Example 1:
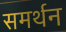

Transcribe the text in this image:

समर्थन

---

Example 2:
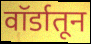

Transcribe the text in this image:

वॉर्डातून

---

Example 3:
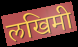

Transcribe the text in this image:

लखिमी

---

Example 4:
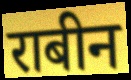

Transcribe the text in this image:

राबीन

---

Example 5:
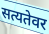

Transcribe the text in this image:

सत्यतेवर